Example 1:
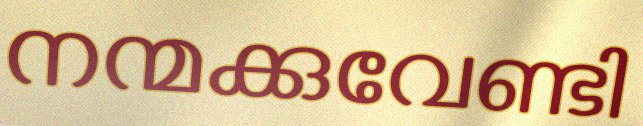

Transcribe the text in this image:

നന്മക്കുവേണ്ടി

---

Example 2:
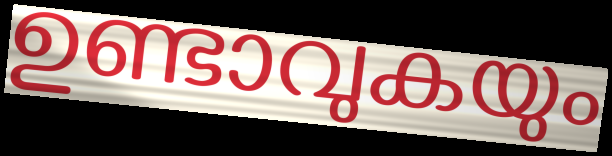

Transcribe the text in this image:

ഉണ്ടാവുകയും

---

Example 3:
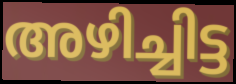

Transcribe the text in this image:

അഴിച്ചിട്ട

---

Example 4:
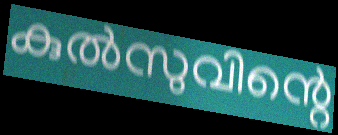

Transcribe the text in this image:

കുൽസുവിന്റെ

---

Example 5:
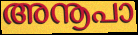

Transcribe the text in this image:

അനൂപാ